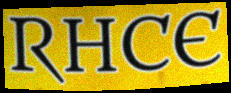
RHCE